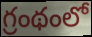
గ్రంథంలో